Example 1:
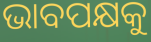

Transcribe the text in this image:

ଭାବପକ୍ଷକୁ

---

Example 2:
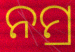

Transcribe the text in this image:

ନମ୍ର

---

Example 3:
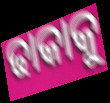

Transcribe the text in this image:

ଢାକାକୁ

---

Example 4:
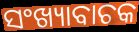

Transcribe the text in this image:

ସଂଖ୍ୟାବାଚକ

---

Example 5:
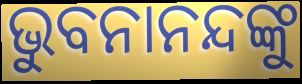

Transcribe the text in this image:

ଭୁବନାନନ୍ଦଙ୍କୁ